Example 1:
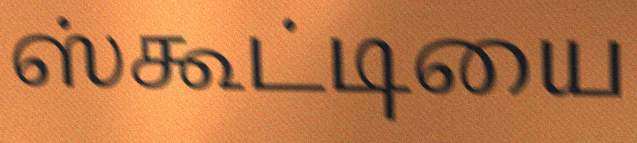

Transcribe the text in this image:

ஸ்கூட்டியை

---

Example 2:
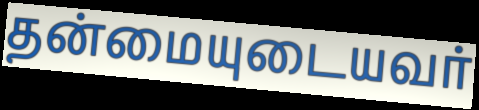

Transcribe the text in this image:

தன்மையுடையவர்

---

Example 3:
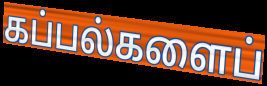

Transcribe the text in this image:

கப்பல்களைப்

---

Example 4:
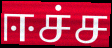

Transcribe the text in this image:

ஈச்ச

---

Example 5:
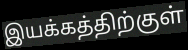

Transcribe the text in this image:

இயக்கத்திற்குள்